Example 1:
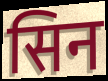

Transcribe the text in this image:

सिन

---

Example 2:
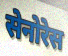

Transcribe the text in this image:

सेनोरेस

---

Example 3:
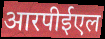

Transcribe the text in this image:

आरपीईएल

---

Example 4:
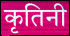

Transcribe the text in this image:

कृतिनी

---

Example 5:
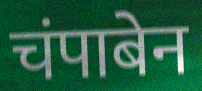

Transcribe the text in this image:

चंपाबेन